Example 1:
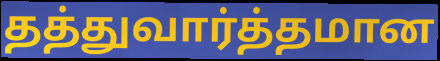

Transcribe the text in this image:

தத்துவார்த்தமான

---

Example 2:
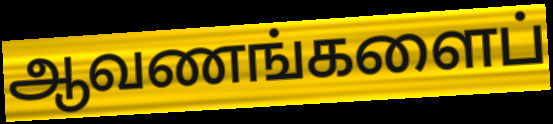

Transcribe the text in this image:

ஆவணங்களைப்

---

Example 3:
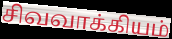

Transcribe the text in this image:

சிவவாக்கியம்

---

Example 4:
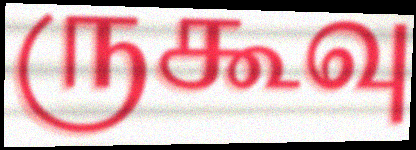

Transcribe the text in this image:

ருகூவு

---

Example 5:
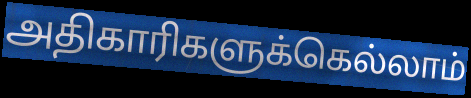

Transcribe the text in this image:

அதிகாரிகளுக்கெல்லாம்